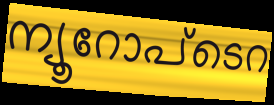
ന്യൂറോപ്ടെറ